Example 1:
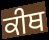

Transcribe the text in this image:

ਕੀਥ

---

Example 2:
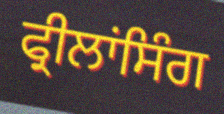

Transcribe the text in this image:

ਫ੍ਰੀਲਾਂਸਿੰਗ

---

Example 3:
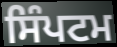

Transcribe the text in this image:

ਸਿੰਪਟਮ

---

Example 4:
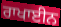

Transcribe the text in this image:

ਰਾਖਾਈਨ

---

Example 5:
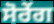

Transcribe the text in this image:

ਸੋਰੇਂਗ